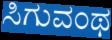
ಸಿಗುವಂಥ